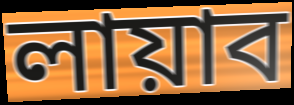
লায়াব